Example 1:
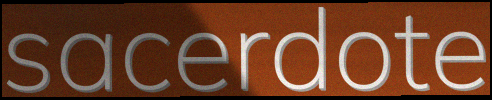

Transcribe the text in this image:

sacerdote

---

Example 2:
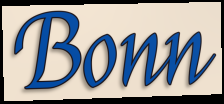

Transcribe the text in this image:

Bonn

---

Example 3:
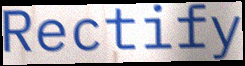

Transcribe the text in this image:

Rectify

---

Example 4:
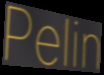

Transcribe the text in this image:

Pelin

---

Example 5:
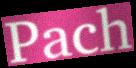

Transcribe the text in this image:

Pach